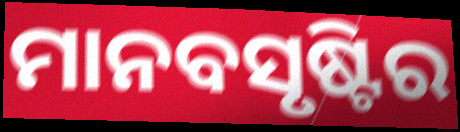
ମାନବସୃଷ୍ଟିର